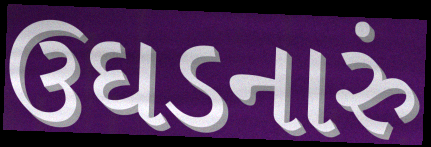
ઉઘડનારું